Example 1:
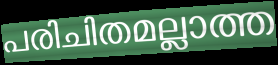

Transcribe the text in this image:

പരിചിതമല്ലാത്ത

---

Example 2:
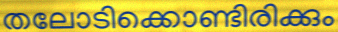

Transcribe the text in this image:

തലോടിക്കൊണ്ടിരിക്കും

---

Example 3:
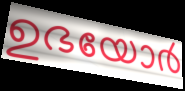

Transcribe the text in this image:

ഉഭയോർ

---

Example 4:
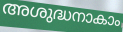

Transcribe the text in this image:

അശുദ്ധനാകാം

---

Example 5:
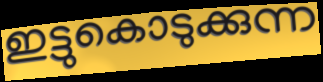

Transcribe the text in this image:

ഇട്ടുകൊടുക്കുന്ന